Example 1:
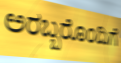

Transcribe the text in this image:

ಅರಬ್ಬರೊಂದಿಗೆ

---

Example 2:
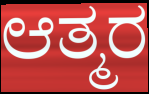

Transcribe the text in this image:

ಆತ್ಮರ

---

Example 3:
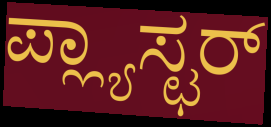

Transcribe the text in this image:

ಪ್ಲ್ಯಾಸ್ಟರ್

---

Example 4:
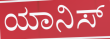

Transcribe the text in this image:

ಯಾನಿಸ್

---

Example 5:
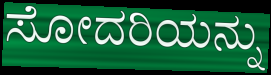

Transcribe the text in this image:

ಸೋದರಿಯನ್ನು